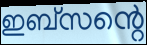
ഇബ്സന്റെ